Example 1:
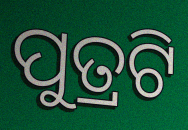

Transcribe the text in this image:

ପୁତ୍ରଟି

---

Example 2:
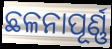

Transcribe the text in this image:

ଛଳନାପୂର୍ଣ୍ଣ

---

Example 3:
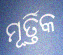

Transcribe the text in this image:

ମୂର୍ତ୍ତିକ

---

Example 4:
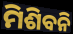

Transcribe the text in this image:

ମିଶିବନି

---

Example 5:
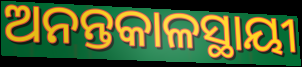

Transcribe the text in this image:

ଅନନ୍ତକାଳସ୍ଥାୟୀ